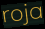
roja